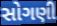
સોગણી